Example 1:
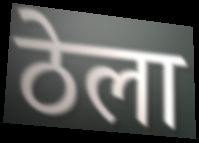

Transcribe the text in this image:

ठेला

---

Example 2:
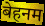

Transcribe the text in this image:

बेहनम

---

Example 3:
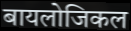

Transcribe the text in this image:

बायलोजिकल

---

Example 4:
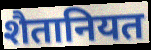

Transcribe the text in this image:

शैतानियत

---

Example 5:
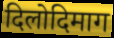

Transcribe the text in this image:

दिलोदिमाग